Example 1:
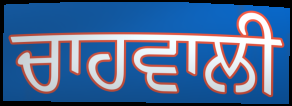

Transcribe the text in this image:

ਚਾਹਵਾਲੀ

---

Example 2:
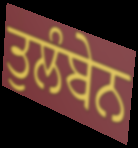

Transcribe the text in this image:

ਤੁਲੰਬੇਨ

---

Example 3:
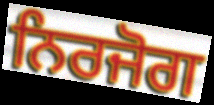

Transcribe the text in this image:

ਨਿਰਜੋਗ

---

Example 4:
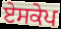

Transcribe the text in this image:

ਏਸਕੇਪ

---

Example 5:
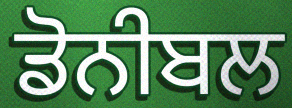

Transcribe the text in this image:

ਡੋਨੀਬਲ